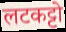
लटकट्टो